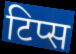
टिप्स